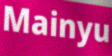
Mainyu